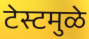
टेस्टमुळे